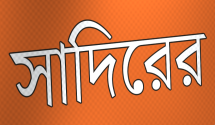
সাদিরের